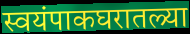
स्वयंपाकघरातल्या